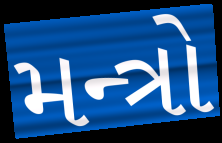
મન્ત્રો